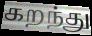
கறந்து